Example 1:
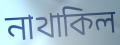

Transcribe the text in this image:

নাথাকিল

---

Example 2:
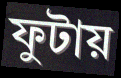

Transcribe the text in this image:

ফুটায়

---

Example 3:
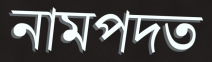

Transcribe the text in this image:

নামপদত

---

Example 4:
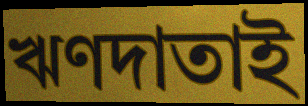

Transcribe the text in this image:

ঋণদাতাই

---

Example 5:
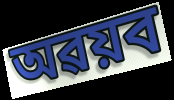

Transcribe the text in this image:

অৱয়ব